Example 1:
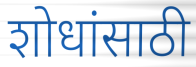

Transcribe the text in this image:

शोधांसाठी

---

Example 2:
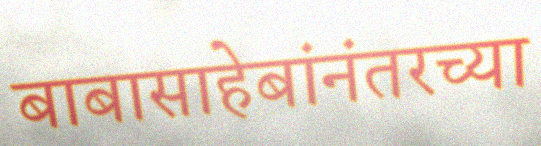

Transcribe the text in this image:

बाबासाहेबांनंतरच्या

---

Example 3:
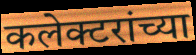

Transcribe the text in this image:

कलेक्टरांच्या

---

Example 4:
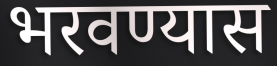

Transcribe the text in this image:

भरवण्यास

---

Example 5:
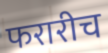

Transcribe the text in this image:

फरारीच